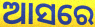
ଆସରେ